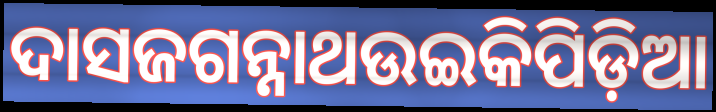
ଦାସଜଗନ୍ନାଥଉଇକିପିଡ଼ିଆ